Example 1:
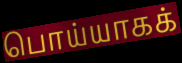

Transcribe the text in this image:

பொய்யாகக்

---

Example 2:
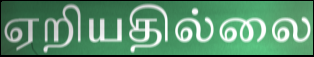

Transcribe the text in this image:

ஏறியதில்லை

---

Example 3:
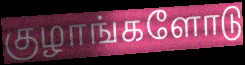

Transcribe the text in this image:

குழாங்களோடு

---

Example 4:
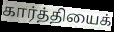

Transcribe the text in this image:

கார்த்தியைக்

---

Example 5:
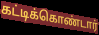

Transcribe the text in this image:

கட்டிக்கொண்டார்